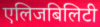
एलिजबिलिटी